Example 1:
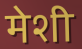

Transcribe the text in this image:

मेशी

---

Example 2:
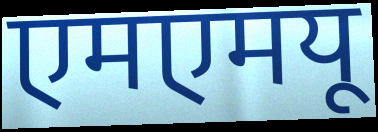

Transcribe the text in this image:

एमएमयू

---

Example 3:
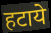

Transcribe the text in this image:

हटाये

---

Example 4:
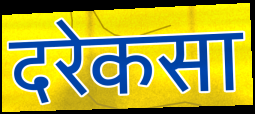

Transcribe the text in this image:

दरेकसा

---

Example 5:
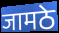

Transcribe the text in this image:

जामठे